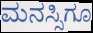
ಮನಸ್ಸಿಗೂ